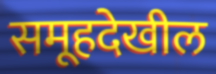
समूहदेखील